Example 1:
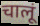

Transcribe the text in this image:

चालूं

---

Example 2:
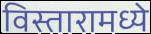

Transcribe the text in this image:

विस्तारामध्ये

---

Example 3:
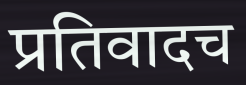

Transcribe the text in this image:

प्रतिवादच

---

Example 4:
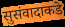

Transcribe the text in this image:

सुसंवादाकडे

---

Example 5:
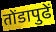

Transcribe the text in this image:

तोंडापुढें